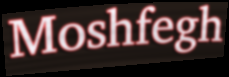
Moshfegh